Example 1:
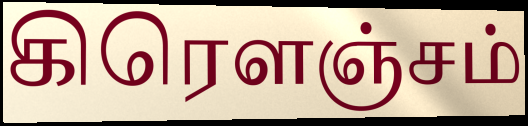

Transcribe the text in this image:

கிரௌஞ்சம்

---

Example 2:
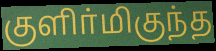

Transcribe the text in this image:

குளிர்மிகுந்த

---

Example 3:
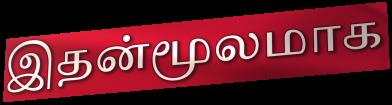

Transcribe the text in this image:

இதன்மூலமாக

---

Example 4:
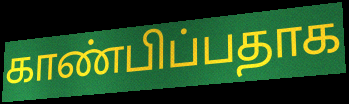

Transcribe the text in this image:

காண்பிப்பதாக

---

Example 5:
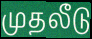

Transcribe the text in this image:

முதலீடு